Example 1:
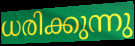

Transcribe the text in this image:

ധരിക്കുന്നു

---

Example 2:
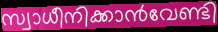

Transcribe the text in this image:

സ്വാധീനിക്കാൻവേണ്ടി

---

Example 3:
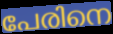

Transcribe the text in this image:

പേരിനെ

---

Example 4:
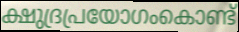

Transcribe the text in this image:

ക്ഷുദ്രപ്രയോഗംകൊണ്ട്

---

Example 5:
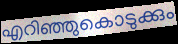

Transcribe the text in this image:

എറിഞ്ഞുകൊടുക്കും